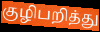
குழிபறித்து